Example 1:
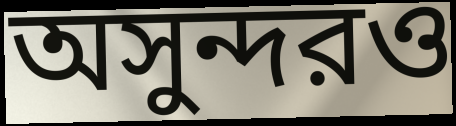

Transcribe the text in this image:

অসুন্দরও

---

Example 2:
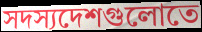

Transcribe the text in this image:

সদস্যদেশগুলোতে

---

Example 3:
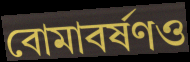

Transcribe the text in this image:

বোমাবর্ষণও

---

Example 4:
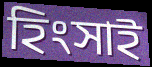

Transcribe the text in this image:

হিংসাই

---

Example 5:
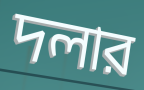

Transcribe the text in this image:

দলার